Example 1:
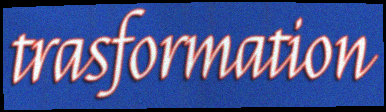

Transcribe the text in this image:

trasformation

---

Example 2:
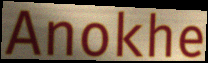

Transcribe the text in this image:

Anokhe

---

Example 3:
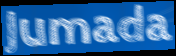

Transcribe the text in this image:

Jumada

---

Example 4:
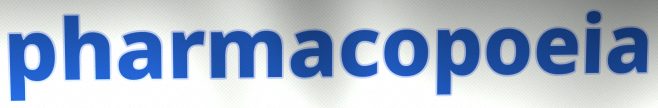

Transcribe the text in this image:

pharmacopoeia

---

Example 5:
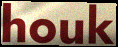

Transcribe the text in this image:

houk